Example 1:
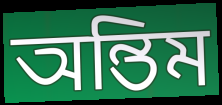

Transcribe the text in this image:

অন্তিম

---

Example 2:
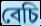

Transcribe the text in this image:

বেচি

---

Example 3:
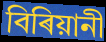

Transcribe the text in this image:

বিৰিয়ানী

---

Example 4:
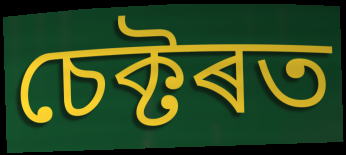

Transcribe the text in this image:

চেক্টৰত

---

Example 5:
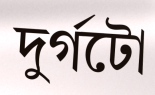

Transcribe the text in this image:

দুৰ্গটো